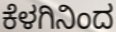
ಕೆಳಗಿನಿಂದ